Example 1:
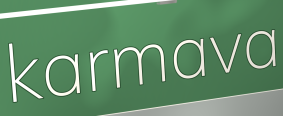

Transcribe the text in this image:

karmava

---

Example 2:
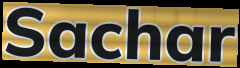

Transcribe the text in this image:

Sachar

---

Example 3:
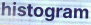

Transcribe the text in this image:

histogram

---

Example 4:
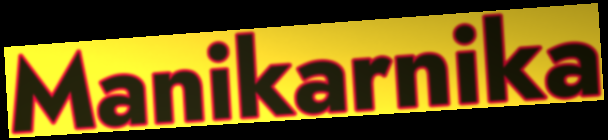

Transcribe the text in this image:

Manikarnika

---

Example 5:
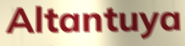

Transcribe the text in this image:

Altantuya